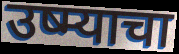
उष्म्याचा